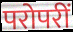
परोपरीं